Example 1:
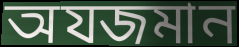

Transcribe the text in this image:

অযজমান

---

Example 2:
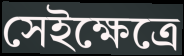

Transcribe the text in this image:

সেইক্ষেত্রে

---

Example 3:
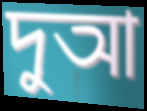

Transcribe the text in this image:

দুআ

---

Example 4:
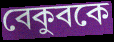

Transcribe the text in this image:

বেকুবকে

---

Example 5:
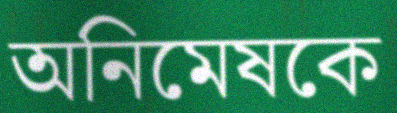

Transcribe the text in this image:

অনিমেষকে